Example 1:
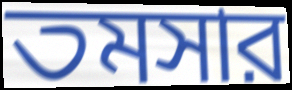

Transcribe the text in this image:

তমসার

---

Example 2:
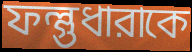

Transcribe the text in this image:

ফল্গুধারাকে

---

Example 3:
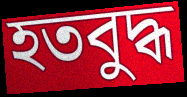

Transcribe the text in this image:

হতবুদ্ধ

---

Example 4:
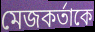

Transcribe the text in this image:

মেজকর্তাকে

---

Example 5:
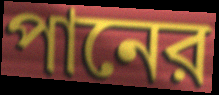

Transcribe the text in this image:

পানের